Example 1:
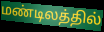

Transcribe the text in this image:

மண்டிலத்தில்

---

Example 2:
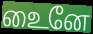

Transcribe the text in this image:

உைனே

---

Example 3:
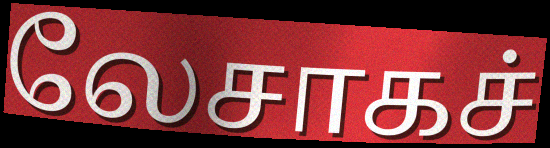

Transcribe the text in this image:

லேசாகச்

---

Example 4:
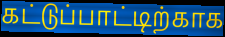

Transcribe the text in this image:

கட்டுப்பாட்டிற்காக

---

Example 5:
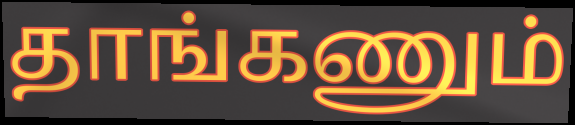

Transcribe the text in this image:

தாங்கணும்